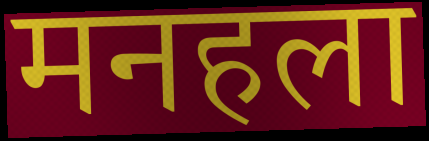
मनहला